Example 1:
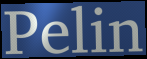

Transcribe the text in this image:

Pelin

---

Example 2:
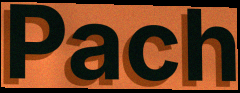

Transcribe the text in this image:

Pach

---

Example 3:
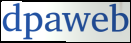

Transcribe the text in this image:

dpaweb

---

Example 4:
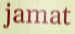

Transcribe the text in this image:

jamat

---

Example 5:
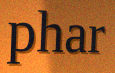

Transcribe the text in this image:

phar